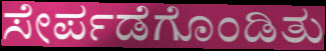
ಸೇರ್ಪಡೆಗೊಂಡಿತು